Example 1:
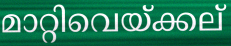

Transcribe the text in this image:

മാറ്റിവെയ്ക്കല്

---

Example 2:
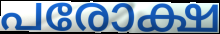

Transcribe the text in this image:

പരോക്ഷ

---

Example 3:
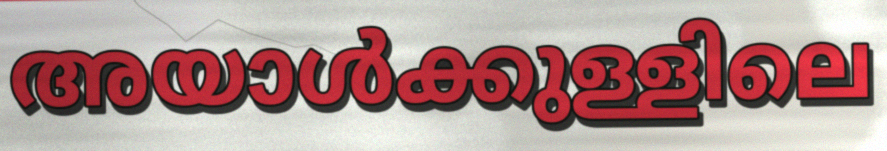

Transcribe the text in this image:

അയാൾക്കുള്ളിലെ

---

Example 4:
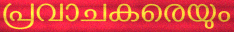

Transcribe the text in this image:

പ്രവാചകരെയും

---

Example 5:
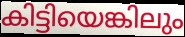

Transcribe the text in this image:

കിട്ടിയെങ്കിലും